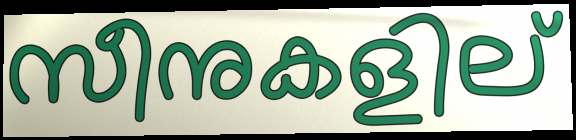
സീനുകളില്